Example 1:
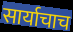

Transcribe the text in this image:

सार्याचाच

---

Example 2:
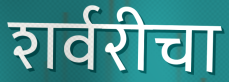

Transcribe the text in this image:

शर्वरीचा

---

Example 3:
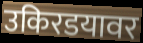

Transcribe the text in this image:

उकिरडयावर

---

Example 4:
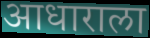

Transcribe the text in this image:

आधाराला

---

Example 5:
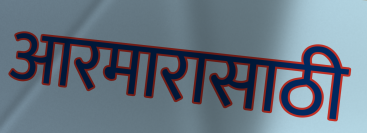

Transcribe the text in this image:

आरमारासाठी